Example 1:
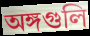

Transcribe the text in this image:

অঙ্গগুলি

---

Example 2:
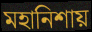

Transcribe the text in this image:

মহানিশায়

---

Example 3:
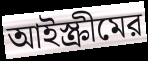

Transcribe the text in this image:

আইস্ক্রীমের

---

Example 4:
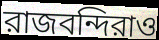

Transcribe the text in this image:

রাজবন্দিরাও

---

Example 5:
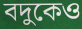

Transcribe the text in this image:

বদুকেও